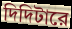
দিদিটারে